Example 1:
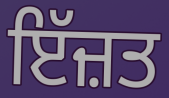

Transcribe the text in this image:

ਇੱਜ਼ਤ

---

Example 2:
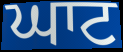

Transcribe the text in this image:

ਘਾਟ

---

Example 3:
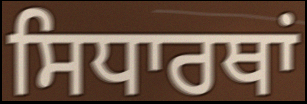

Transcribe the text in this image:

ਸਿਧਾਰਥਾਂ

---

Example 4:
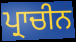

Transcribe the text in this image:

ਪ੍ਰਾਚੀਨ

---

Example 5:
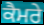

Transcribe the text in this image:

ਕੈਮਰੇ